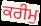
ਕਰੀਮੁ